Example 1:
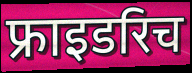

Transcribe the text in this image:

फ्राइडरिच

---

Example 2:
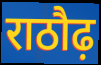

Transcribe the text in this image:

राठौढ़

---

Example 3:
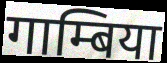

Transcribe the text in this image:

गाम्बिया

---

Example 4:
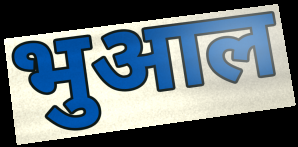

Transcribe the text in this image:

भुआल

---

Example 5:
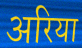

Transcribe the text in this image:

अरिया